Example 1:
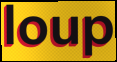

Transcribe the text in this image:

loup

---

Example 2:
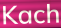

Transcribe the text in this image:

Kach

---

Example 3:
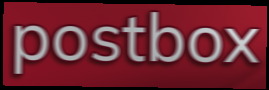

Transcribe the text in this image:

postbox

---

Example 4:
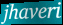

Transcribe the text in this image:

jhaveri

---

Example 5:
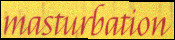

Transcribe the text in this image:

masturbation